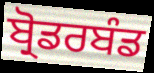
ਬ੍ਰੋਡਰਬੰਡ